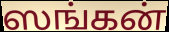
ஸங்கன்